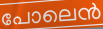
പോലെൻ